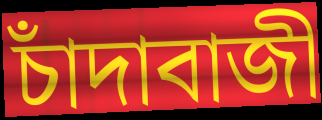
চাঁদাবাজী